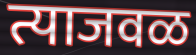
त्याजवळ